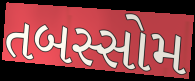
તબસ્સોમ